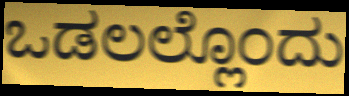
ಒಡಲಲ್ಲೊಂದು